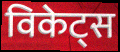
विकेट्स